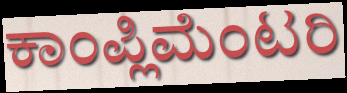
ಕಾಂಪ್ಲಿಮೆಂಟರಿ